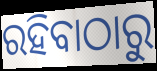
ରହିବାଠାରୁ